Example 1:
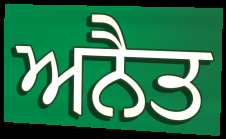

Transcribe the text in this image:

ਅਨੈਤ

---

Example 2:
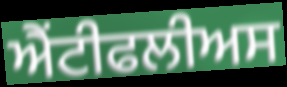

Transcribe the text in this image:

ਐਂਟੀਫਲੀਅਸ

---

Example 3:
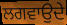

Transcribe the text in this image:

ਲਗਵਾਉਦੇ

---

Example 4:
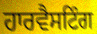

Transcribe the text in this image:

ਹਾਰਵੈਸਟਿੰਗ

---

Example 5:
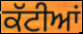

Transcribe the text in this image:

ਕੱਟੀਆਂ